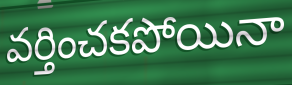
వర్తించకపోయినా